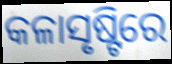
କଳାସୃଷ୍ଟିରେ